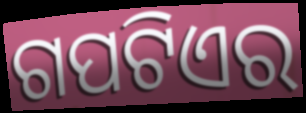
ଗପଟିଏର